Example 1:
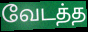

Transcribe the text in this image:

வேடத்த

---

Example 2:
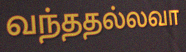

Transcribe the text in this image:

வந்ததல்லவா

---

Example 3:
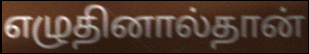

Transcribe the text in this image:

எழுதினால்தான்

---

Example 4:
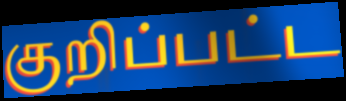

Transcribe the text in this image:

குறிப்பட்ட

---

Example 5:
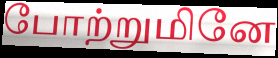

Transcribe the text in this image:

போற்றுமினே